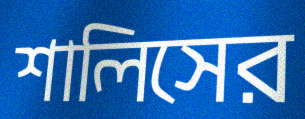
শালিসের